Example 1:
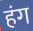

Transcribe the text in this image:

हंग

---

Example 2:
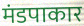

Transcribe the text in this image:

मंडपाकार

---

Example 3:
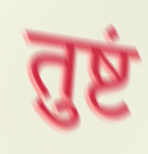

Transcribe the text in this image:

तुष्टं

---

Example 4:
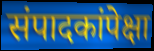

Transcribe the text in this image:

संपादकांपेक्षा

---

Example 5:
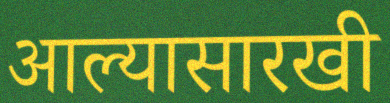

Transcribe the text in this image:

आल्यासारखी